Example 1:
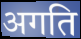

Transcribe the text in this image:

अगति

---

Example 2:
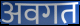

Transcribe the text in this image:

अवगत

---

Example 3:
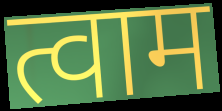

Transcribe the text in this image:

त्वाम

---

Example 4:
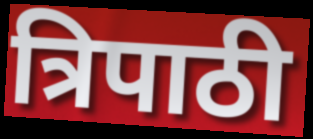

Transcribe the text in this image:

त्रिपाठी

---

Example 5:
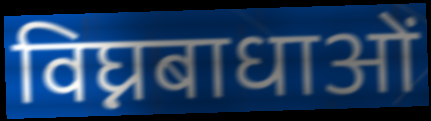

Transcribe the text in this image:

विघ्नबाधाओं